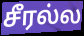
சீரல்ல